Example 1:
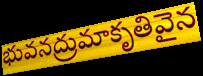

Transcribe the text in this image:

భువనద్రుమాకృతివైన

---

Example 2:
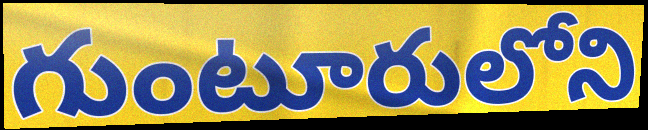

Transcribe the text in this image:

గుంటూరులోని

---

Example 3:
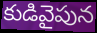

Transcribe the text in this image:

కుడివైపున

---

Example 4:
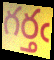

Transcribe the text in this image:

గర్తఁ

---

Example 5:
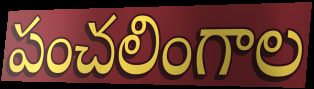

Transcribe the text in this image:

పంచలింగాల